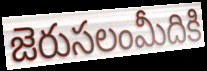
జెరుసలంమీదికి